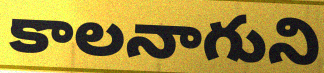
కాలనాగుని